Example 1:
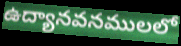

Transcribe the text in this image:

ఉద్యానవనములలో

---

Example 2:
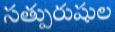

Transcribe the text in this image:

సత్పురుషుల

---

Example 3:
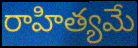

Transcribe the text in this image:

రాహిత్యమే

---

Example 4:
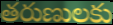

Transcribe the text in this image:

తరుణులకు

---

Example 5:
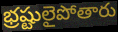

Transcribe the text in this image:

భ్రష్టులైపోతారు